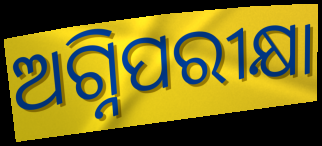
ଅଗ୍ନିପରୀକ୍ଷା